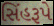
સિંહરૂપે